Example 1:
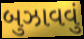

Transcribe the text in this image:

બુઝાવવું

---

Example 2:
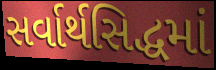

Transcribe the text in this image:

સર્વાર્થસિદ્ધમાં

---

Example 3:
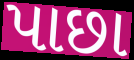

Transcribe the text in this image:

પાછા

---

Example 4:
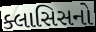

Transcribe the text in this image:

ક્લાસિસનો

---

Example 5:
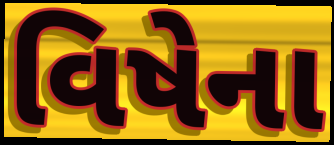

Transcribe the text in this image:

વિષેના